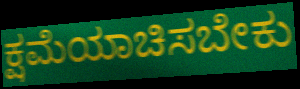
ಕ್ಷಮೆಯಾಚಿಸಬೇಕು